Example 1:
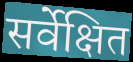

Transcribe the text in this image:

सर्वेक्षित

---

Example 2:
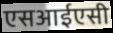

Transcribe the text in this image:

एसआईएसी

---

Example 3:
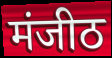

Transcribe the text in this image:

मंजीठ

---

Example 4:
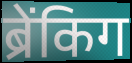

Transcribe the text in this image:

ब्रेंकिग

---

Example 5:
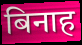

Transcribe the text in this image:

बिनाह